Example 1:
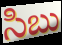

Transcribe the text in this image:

సిబు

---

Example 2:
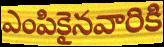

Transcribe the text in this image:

ఎంపికైనవారికి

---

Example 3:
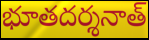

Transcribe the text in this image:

భూతదర్శనాత్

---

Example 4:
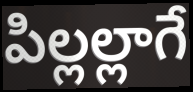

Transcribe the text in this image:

పిల్లల్లాగే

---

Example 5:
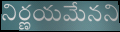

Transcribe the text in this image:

నిర్ణయమేనని